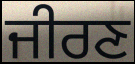
ਜੀਰਣ